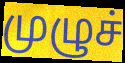
முழுச்